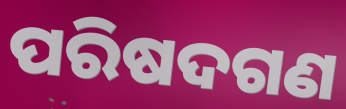
ପରିଷଦଗଣ